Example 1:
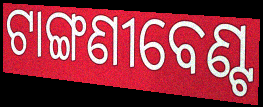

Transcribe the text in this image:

ଟାଙ୍ଗଣୀବେଣ୍ଟ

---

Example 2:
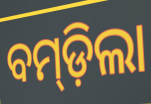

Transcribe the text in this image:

ବମ୍‍ଡ଼ିଲା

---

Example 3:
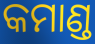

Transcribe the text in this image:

କମାଣ୍ଡ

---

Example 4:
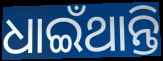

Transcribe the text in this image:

ଧାଇଁଥାନ୍ତି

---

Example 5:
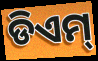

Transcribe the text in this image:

ଡିଏମ୍